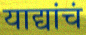
याद्यांचं